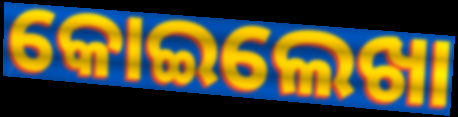
କୋଇଲେଖା